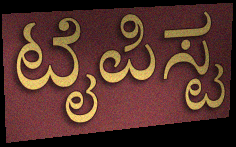
ಟೈಪಿಸ್ಟ